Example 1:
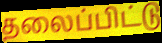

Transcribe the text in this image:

தலைப்பிட்டு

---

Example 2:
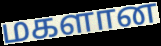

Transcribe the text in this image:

மகளான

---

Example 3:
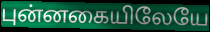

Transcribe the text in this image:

புன்னகையிலேயே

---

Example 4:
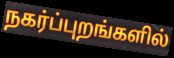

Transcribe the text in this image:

நகர்ப்புறங்களில்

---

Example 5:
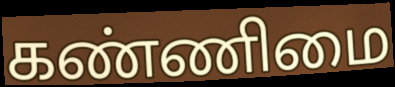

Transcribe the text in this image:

கண்ணிமை